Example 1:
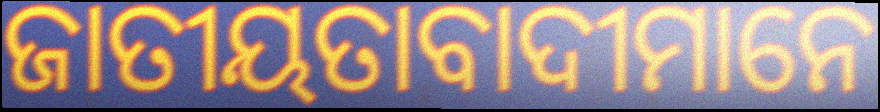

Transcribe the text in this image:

ଜାତୀୟତାବାଦୀମାନେ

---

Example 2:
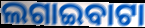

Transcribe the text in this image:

ଲଗାଇବାଟା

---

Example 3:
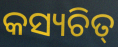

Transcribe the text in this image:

କସ୍ୟଚିତ୍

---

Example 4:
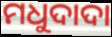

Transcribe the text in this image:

ମଧୁଦାଦା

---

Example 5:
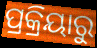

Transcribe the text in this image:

ପ୍ରକ୍ରିୟାରୁ